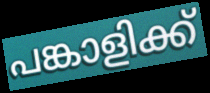
പങ്കാളിക്ക്